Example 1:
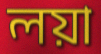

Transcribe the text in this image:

লয়া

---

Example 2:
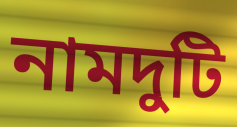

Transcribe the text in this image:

নামদুটি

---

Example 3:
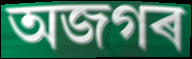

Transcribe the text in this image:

অজগৰ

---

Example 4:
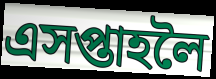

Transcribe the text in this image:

এসপ্তাহলৈ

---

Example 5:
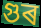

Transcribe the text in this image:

গুৰ